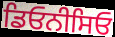
ਡਿਓਨੀਸਿਓ